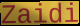
Zaidi